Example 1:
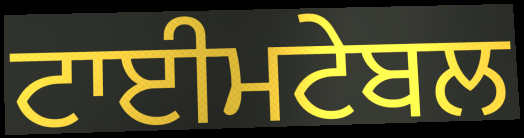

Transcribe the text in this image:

ਟਾਈਮਟੇਬਲ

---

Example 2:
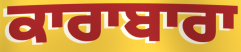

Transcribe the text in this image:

ਕਾਰਾਬਾਰਾ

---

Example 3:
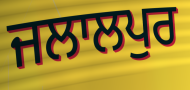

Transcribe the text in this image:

ਜਲਾਲਪੁਰ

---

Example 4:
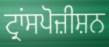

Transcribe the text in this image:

ਟ੍ਰਾਂਸਪੋਜ਼ੀਸ਼ਨ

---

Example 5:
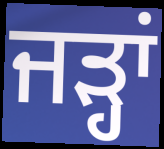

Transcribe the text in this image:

ਜੜ੍ਹਾਂ